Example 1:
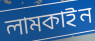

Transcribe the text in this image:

লামকাইন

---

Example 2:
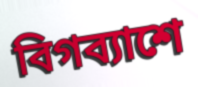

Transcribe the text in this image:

বিগব্যাশে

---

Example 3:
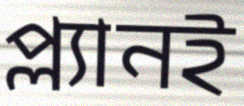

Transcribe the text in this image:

প্ল্যানই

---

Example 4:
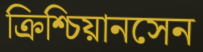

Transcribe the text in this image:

ক্রিশ্চিয়ানসেন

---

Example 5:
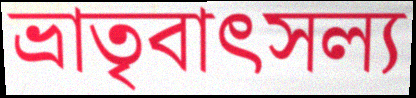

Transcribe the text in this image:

ভ্রাতৃবাৎসল্য